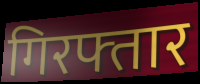
गिरफ्‍तार